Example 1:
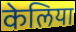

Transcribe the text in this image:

केलिया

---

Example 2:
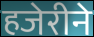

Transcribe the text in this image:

हजेरीने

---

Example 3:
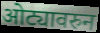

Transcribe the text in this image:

ओट्यावरुन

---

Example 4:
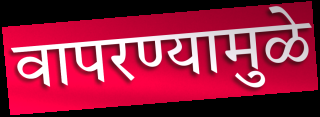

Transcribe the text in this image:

वापरण्यामुळे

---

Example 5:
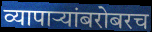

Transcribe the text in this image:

व्यापाऱ्यांबरोबरच